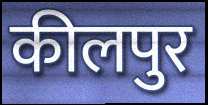
कीलपुर